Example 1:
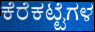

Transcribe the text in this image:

ಕೆರೆಕಟ್ಟೆಗಳ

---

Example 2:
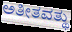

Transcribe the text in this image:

ಅತೀತವತ್ಥು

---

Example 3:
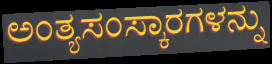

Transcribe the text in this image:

ಅಂತ್ಯಸಂಸ್ಕಾರಗಳನ್ನು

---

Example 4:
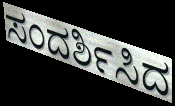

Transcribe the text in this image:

ಸಂದರ್ಶಿಸಿದ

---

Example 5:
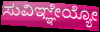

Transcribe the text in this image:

ಸುವಿಞ್ಞೇಯ್ಯೋ